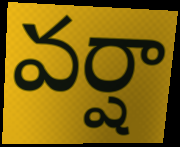
వర్షా